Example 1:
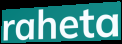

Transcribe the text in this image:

raheta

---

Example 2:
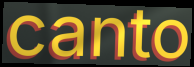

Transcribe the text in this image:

canto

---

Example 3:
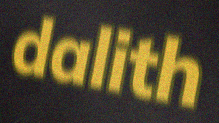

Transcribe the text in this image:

dalith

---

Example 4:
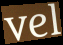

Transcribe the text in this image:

vel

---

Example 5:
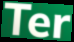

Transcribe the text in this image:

Ter